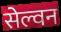
सेल्वन